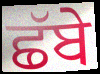
ਛੱਬੇ